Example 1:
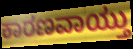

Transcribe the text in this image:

ಕಾರಣವಾಯ್ತು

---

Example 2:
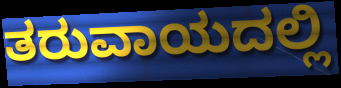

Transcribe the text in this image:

ತರುವಾಯದಲ್ಲಿ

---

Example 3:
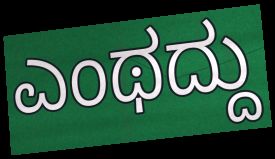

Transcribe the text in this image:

ಎಂಥದ್ದು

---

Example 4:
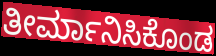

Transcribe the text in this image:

ತೀರ್ಮಾನಿಸಿಕೊಂಡ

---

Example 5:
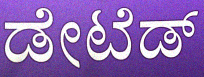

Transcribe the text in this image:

ಡೇಟೆಡ್